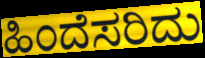
ಹಿಂದೆಸರಿದು